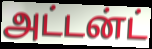
அட்டன்ட்